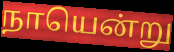
நாயென்று